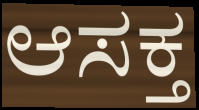
ಆಸಕ್ತ